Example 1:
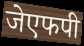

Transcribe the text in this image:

जेएफपी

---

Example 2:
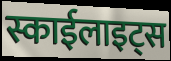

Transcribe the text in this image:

स्काईलाइट्स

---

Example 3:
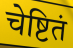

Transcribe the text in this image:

चेष्टितं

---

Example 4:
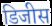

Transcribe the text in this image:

डिजीस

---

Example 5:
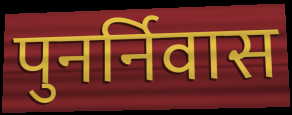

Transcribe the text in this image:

पुनर्निवास